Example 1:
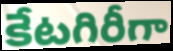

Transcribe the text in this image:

కేటగిరీగా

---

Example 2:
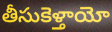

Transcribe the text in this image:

తీసుకెళ్తాయో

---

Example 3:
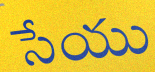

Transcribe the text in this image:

సేయు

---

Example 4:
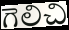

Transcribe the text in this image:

గెలిచి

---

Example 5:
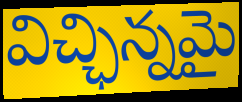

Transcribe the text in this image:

విచ్ఛిన్నమై